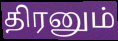
திரனும்